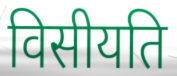
विसीयति